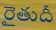
రైతుదీ